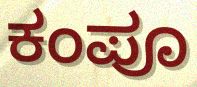
ಕಂಪೂ